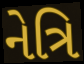
નેત્રિ